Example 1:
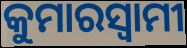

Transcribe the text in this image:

କୁମାରସ୍ୱାମୀ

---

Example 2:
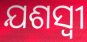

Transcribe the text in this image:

ଯଶସ୍ବୀ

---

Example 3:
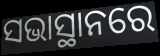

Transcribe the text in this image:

ସଭାସ୍ଥାନରେ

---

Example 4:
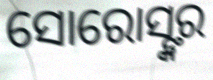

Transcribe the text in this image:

ସୋରୋସ୍ଙ୍କର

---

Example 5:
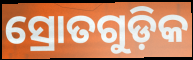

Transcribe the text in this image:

ସ୍ରୋତଗୁଡ଼ିକ